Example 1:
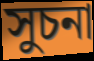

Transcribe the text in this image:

সুচনা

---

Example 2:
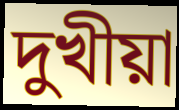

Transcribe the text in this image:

দুখীয়া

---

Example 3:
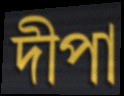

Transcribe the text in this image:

দীপা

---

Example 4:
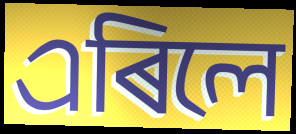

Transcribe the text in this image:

এৰিলে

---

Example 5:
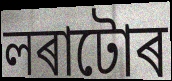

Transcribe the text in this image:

লৰাটোৰ